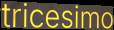
tricesimo